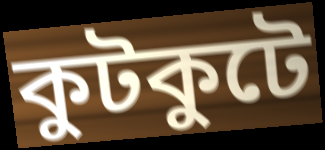
কুটকুটে